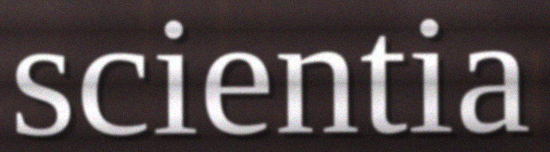
scientia